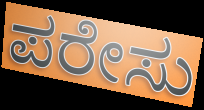
ಪರೇಸು